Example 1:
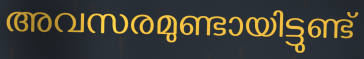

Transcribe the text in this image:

അവസരമുണ്ടായിട്ടുണ്ട്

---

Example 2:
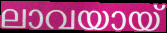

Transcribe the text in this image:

ലാവയായ്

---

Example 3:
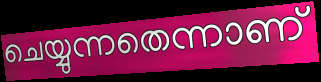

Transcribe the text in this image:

ചെയ്യുന്നതെന്നാണ്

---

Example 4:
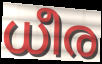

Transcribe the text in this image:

ധീര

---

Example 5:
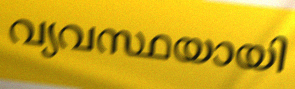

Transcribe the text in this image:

വ്യവസ്ഥയായി